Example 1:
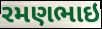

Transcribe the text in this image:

રમણભાઇ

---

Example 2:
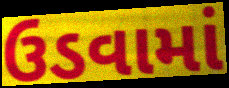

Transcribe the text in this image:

ઉડવામાં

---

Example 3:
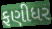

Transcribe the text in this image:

ફણીધર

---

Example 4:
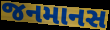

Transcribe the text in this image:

જનમાનસ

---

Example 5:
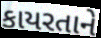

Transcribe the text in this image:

કાયરતાને